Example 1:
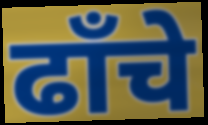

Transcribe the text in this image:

ढाँचे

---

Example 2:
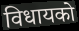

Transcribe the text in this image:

विधायको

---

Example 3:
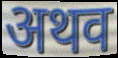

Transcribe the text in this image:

अथव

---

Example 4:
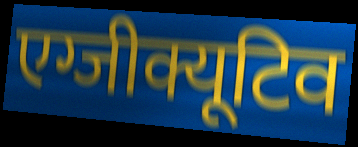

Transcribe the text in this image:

एग्जीक्यूटिव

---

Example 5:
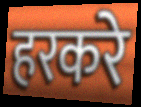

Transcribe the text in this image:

हरकरे